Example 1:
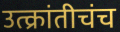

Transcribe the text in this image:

उत्क्रांतीचंच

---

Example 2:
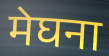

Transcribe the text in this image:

मेघना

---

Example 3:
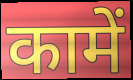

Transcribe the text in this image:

कामें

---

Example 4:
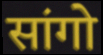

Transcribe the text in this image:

सांगो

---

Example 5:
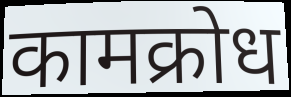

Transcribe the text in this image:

कामक्रोध